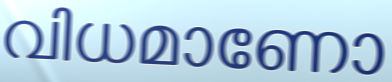
വിധമാണോ